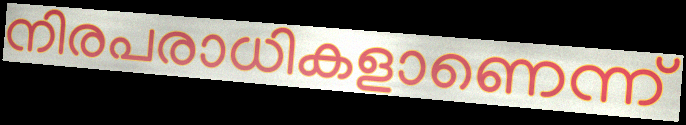
നിരപരാധികളാണെന്ന്